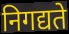
निगद्यते